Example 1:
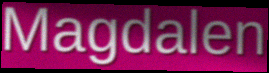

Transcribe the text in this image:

Magdalen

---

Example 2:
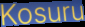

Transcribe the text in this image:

Kosuru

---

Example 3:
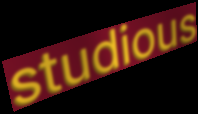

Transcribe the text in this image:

studious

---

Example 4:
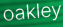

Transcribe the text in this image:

oakley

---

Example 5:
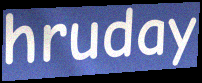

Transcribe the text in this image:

hruday